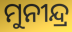
ମୁନୀନ୍ଦ୍ର